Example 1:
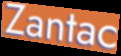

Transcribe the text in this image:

Zantac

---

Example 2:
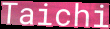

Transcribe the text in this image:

Taichi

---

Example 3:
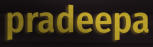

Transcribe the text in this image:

pradeepa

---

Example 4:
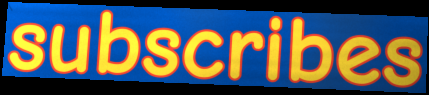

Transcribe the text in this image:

subscribes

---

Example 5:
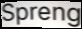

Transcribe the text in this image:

Spreng